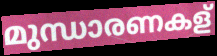
മുന്ധാരണകള്